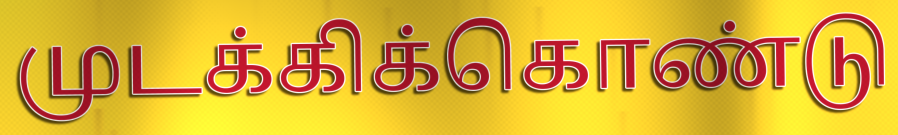
முடக்கிக்கொண்டு